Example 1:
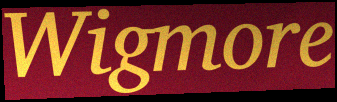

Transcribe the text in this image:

Wigmore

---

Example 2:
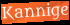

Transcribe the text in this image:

Kannige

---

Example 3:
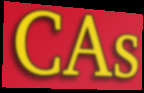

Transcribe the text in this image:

CAs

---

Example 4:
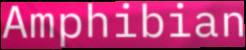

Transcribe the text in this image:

Amphibian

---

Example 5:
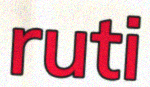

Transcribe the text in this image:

ruti